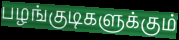
பழங்குடிகளுக்கும்